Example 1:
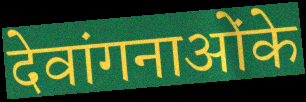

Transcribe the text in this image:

देवांगनाओंके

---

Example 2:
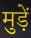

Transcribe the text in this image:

मुड़ें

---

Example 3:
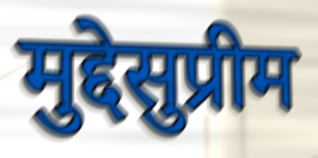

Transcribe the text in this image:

मुद्देसुप्रीम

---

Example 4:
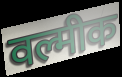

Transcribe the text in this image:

वल्मीक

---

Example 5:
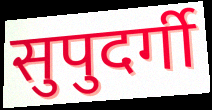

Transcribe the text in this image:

सुपुदर्गी